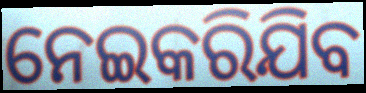
ନେଇକରିଯିବ